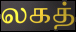
லகத்